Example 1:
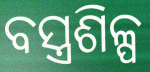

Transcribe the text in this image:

ବସ୍ତ୍ରଶିଳ୍ପ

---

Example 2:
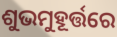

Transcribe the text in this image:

ଶୁଭମୁହୂର୍ତ୍ତରେ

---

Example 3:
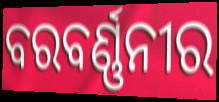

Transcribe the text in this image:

ବରବର୍ଣ୍ଣନୀର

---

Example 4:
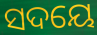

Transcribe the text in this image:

ସଦୟେ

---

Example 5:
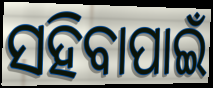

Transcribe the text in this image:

ସହିବାପାଇଁ